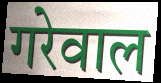
गरेवाल